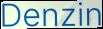
Denzin